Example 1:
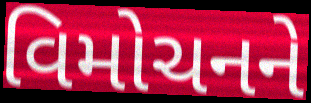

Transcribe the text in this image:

વિમોચનને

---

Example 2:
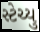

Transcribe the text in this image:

સ્ટેચ્યુ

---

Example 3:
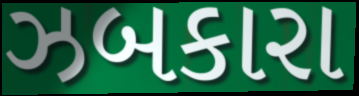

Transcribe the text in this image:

ઝબકારા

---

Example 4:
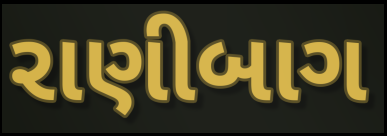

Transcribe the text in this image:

રાણીબાગ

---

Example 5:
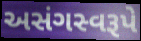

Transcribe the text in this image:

અસંગસ્વરૂપે